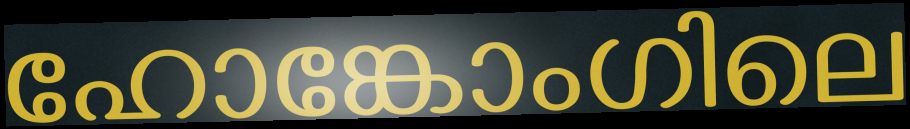
ഹോങ്കോംഗിലെ